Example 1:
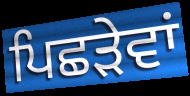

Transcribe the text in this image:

ਪਿਛੜੇਵਾਂ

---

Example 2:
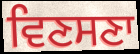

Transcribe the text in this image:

ਵਿਣਸਣਾ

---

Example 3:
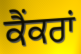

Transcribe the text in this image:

ਕੈਂਕਰਾਂ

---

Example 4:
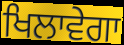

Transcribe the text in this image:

ਖਿਲਾਵੇਗਾ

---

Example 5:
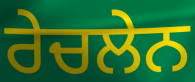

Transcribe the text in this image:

ਰੇਚਲੇਨ